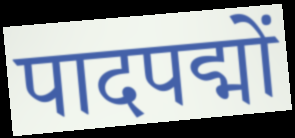
पादपद्मों